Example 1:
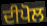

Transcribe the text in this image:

ਦੀਪੋਲ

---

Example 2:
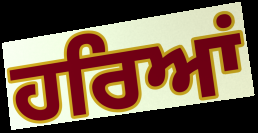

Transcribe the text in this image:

ਹਰਿਆਂ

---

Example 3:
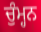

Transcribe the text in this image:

ਚੁੰਮ੍ਹਨ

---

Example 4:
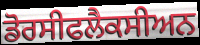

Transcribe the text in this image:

ਡੋਰਸੀਫਲੈਕਸੀਅਨ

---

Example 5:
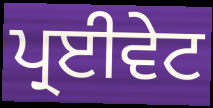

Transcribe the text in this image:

ਪ੍ਰਈਵੇਟ